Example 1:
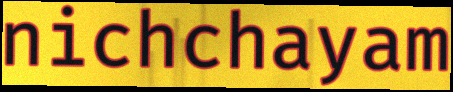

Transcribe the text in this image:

nichchayam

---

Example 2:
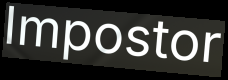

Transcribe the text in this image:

Impostor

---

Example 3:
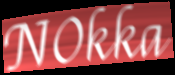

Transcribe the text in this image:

NOkka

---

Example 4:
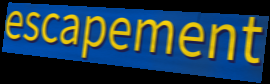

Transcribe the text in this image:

escapement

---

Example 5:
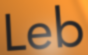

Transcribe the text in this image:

Leb